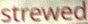
strewed